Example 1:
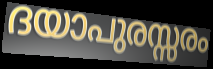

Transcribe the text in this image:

ദയാപുരസ്സരം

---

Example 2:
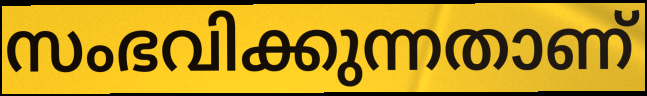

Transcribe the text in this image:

സംഭവിക്കുന്നതാണ്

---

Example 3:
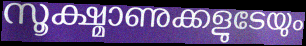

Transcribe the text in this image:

സൂക്ഷ്മാണുക്കളുടേയും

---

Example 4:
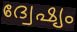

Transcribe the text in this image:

ദ്വേഷ്യം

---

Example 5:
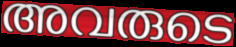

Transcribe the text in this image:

അവരുടെ